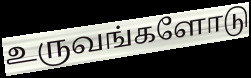
உருவங்களோடு